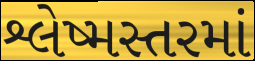
શ્લેષ્મસ્તરમાં